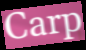
Carp